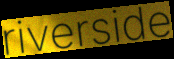
riverside